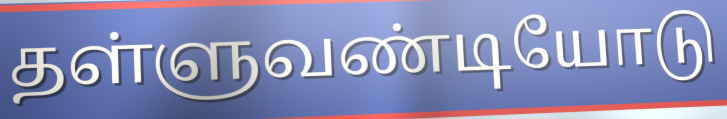
தள்ளுவண்டியோடு